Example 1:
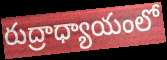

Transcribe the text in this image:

రుద్రాధ్యాయంలో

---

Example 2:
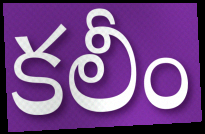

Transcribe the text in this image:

కలీం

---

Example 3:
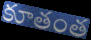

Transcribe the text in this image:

కూతంత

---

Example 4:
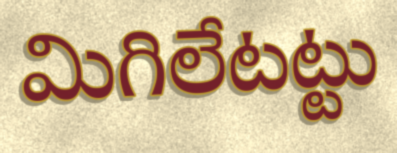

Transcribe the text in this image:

మిగిలేటట్టు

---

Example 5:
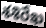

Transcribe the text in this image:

శశిరేఖ